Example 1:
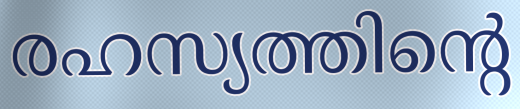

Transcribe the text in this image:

രഹസ്യത്തിന്റെ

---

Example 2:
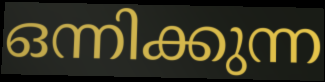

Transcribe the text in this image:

ഒന്നിക്കുന്ന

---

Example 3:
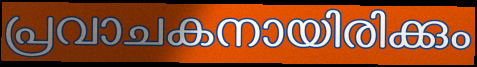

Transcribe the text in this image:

പ്രവാചകനായിരിക്കും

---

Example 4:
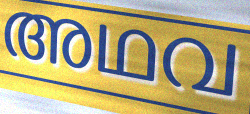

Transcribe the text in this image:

അഥവ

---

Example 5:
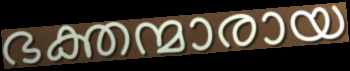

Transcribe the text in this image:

ഭക്തന്മാരായ